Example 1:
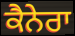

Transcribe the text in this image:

ਕੈਨੇਰਾ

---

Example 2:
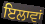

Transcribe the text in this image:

ਇਲਾਵਾਂ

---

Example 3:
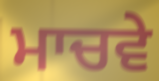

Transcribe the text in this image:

ਮਾਚਵੇ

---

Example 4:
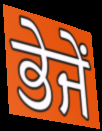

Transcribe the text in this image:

ਭੇਜੇਂ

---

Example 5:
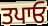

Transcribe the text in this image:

ਤਪਾਓ